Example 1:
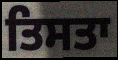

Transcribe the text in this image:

ਤਿਸਤਾ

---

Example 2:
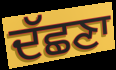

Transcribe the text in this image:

ਦੱਛਣਾ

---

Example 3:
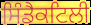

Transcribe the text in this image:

ਸਿੰਡੈਕਟਿਲੀ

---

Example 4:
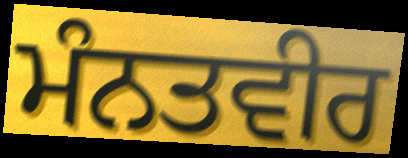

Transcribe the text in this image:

ਮੰਨਤਵੀਰ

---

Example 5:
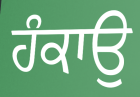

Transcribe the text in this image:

ਹੰਕਾਉ